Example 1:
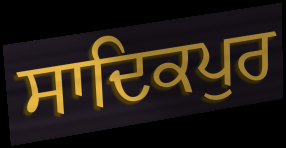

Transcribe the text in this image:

ਸਾਦਿਕਪੁਰ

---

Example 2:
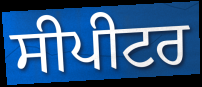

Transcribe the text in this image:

ਸੀਪੀਟਰ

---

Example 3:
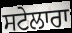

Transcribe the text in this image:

ਸਟੇਲਾਰਾ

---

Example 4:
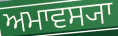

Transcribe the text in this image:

ਅਮਾਵਸ੍ਯਾ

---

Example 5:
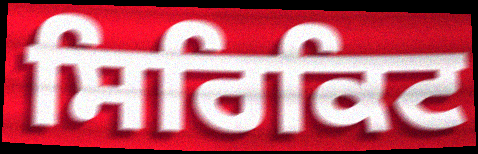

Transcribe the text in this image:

ਸਿਰਿਕਿਟ